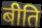
बीति